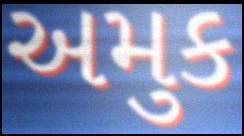
અમુક